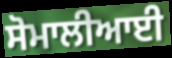
ਸੋਮਾਲੀਆਈ